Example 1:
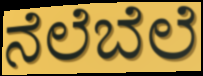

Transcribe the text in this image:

ನೆಲೆಬೆಲೆ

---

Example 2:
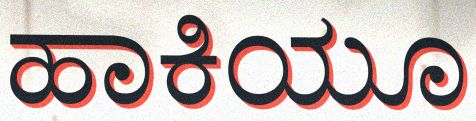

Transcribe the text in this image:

ಹಾಕಿಯೂ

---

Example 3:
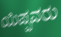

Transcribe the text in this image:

ಯಿಪ್ಪವರು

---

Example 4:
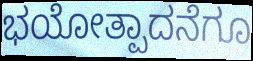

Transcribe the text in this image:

ಭಯೋತ್ಪಾದನೆಗೂ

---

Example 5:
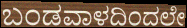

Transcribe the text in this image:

ಬಂಡವಾಳದಿಂದಲೇ